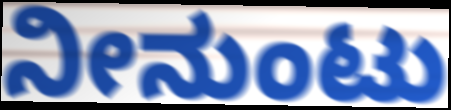
ನೀನುಂಟು